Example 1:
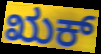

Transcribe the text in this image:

ಋಕ್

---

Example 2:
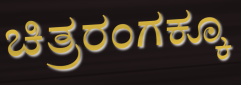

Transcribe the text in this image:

ಚಿತ್ರರಂಗಕ್ಕೂ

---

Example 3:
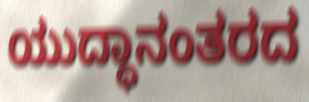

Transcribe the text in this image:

ಯುದ್ಧಾನಂತರದ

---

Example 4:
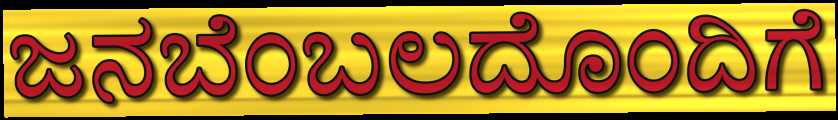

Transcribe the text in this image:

ಜನಬೆಂಬಲದೊಂದಿಗೆ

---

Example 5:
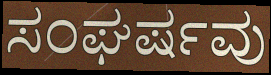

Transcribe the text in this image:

ಸಂಘರ್ಷವು